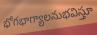
భోగభాగ్యాలనుభవిస్తూ